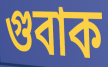
গুবাক